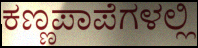
ಕಣ್ಣಪಾಪೆಗಳಲ್ಲಿ